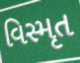
વિસ્મૃત